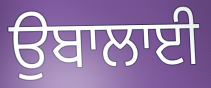
ਉਬਾਲਾਈ